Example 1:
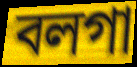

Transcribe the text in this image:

বলগা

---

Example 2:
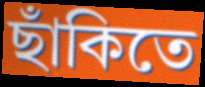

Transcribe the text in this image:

ছাঁকিতে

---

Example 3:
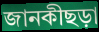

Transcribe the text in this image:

জানকীছড়া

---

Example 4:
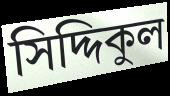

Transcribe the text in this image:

সিদ্দিকুল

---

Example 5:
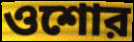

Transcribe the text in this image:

ওশোর